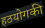
हठयोगकी